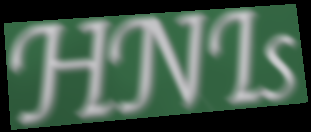
HNIs